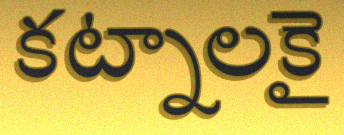
కట్నాలకై